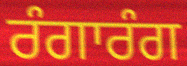
ਰੰਗਾਰੰਗ